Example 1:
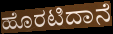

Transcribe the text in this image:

ಹೊರಟಿದಾನೆ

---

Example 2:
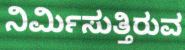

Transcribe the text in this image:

ನಿರ್ಮಿಸುತ್ತಿರುವ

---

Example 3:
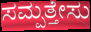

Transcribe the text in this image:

ಸಮ್ಪತ್ತೇಸು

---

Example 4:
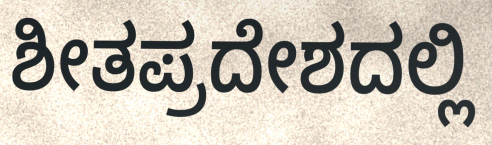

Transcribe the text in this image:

ಶೀತಪ್ರದೇಶದಲ್ಲಿ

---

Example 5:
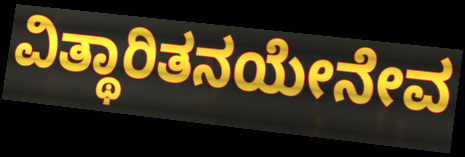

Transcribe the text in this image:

ವಿತ್ಥಾರಿತನಯೇನೇವ